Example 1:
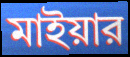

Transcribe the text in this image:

মাইয়ার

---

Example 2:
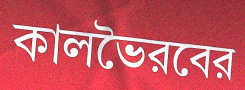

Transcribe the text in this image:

কালভৈরবের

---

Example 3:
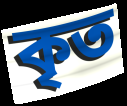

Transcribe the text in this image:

কৃত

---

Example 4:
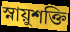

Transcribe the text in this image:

স্নায়ুশক্তি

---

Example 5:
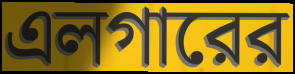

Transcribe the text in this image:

এলগারের